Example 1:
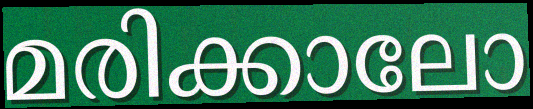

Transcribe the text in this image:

മരിക്കാലോ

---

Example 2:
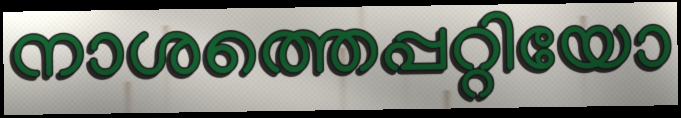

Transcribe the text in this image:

നാശത്തെപ്പറ്റിയോ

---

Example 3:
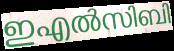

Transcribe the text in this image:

ഇഎൽസിബി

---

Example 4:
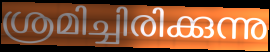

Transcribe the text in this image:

ശ്രമിച്ചിരിക്കുന്നു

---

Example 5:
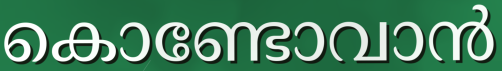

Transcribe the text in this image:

കൊണ്ടോവാൻ